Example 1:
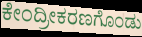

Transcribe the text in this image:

ಕೇಂದ್ರೀಕರಣಗೊಂಡು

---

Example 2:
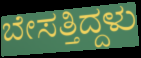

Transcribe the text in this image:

ಬೇಸತ್ತಿದ್ದಳು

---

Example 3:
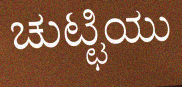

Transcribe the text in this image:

ಚುಟ್ಟಿಯು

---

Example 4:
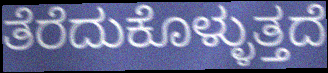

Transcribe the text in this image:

ತೆರೆದುಕೊಳ್ಳುತ್ತದೆ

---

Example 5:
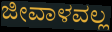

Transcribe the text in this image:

ಜೀವಾಳವಲ್ಲ